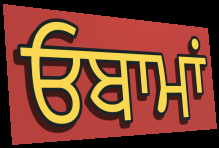
ਓਬਾਮਾਂ